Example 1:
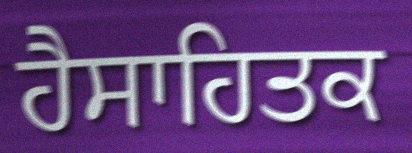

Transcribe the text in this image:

ਹੈਸਾਹਿਤਕ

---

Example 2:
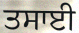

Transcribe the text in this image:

ਤਸਾਈ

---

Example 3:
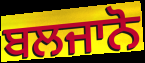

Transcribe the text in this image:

ਬਲਜਾਨੋ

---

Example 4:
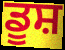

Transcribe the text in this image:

ਡੂਸ਼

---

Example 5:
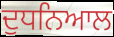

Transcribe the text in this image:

ਦੁਧਨਿਆਲ